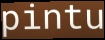
pintu